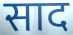
साद